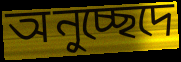
অনুচ্ছেদে